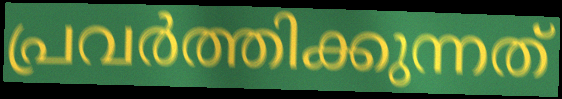
പ്രവർത്തിക്കുന്നത്